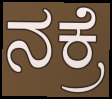
ನಕ್ರೆ